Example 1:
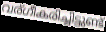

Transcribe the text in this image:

വര്ഗീകരിച്ചിട്ടുണ്ട്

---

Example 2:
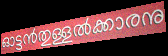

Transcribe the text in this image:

ഓട്ടൻതുള്ളൽക്കാരനു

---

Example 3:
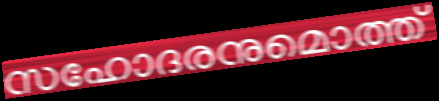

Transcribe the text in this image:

സഹോദരനുമൊത്ത്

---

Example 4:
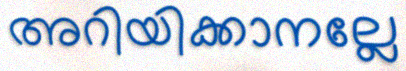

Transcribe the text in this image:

അറിയിക്കാനല്ലേ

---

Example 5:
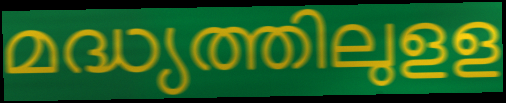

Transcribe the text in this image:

മദ്ധ്യത്തിലുളള